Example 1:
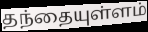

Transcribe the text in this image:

தந்தையுள்ளம்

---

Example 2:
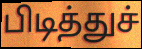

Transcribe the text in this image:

பிடித்துச்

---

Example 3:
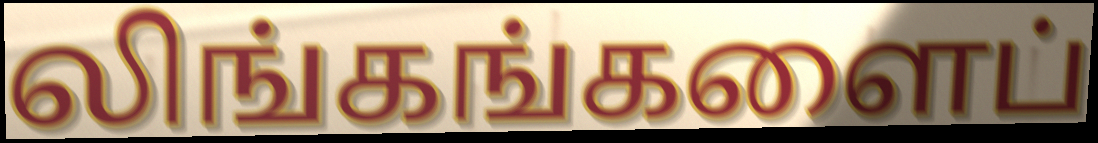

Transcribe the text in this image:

லிங்கங்களைப்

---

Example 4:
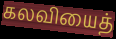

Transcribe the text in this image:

கலவியைத்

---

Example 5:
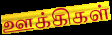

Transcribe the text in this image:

ஊக்கிகள்